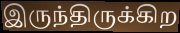
இருந்திருக்கிற